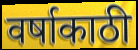
वर्षाकाठी